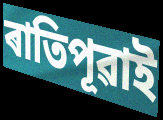
ৰাতিপূৱাই